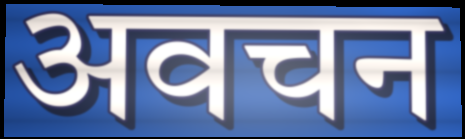
अवचन